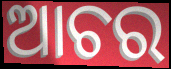
ଆଚର